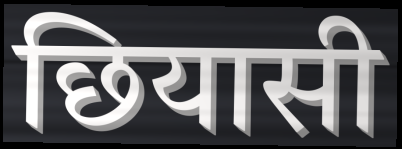
छियासी